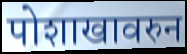
पोशाखावरुन